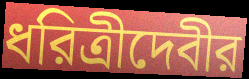
ধরিত্রীদেবীর